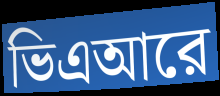
ভিএআরে